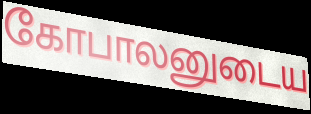
கோபாலனுடைய